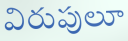
విరుపులూ